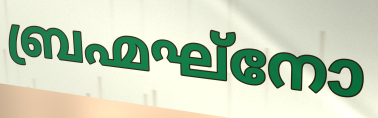
ബ്രഹ്മഘ്നോ